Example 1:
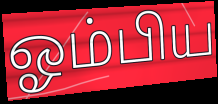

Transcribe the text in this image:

ஓம்பிய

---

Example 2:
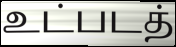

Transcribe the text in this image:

உட்படத்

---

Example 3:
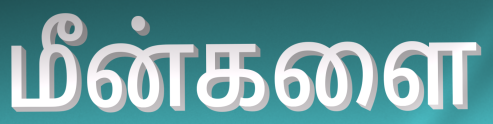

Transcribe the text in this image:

மீன்களை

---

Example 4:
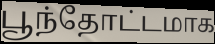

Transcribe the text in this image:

பூந்தோட்டமாக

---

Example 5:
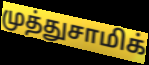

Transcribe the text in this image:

முத்துசாமிக்